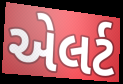
એલર્ટ